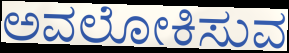
ಅವಲೋಕಿಸುವ